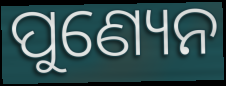
ପୁଣ୍ୟେନ